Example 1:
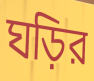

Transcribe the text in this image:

ঘড়ির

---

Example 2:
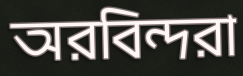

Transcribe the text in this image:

অরবিন্দরা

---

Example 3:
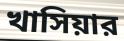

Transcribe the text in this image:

খাসিয়ার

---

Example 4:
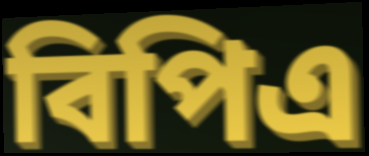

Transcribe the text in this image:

বিপিএ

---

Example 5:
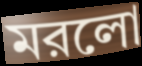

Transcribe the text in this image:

মরলো